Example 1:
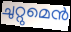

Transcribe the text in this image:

ചുറ്റുമെൻ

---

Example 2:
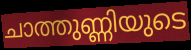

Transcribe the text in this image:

ചാത്തുണ്ണിയുടെ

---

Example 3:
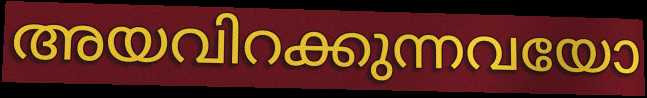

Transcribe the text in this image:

അയവിറക്കുന്നവയോ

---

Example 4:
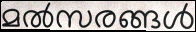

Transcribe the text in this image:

മൽസരങ്ങൾ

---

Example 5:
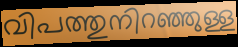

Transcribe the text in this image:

വിപത്തുനിറഞ്ഞുള്ള